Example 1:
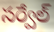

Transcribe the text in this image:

సర్వేల్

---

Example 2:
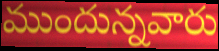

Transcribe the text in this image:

ముందున్నవారు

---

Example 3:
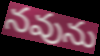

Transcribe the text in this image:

నవును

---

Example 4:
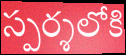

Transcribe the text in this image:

స్పర్శలోకి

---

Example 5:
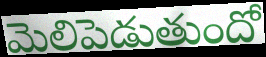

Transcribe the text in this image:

మెలిపెడుతుందో